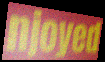
njoyed